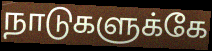
நாடுகளுக்கே